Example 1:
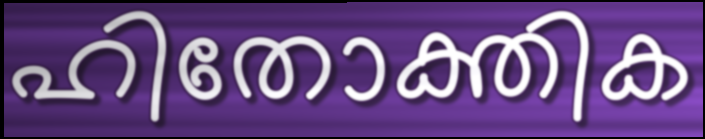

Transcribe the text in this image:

ഹിതോക്തിക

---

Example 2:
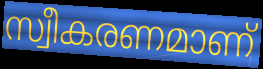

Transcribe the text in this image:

സ്വീകരണമാണ്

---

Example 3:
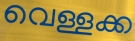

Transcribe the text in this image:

വെള്ളക്ക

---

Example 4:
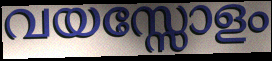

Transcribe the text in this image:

വയസ്സോളം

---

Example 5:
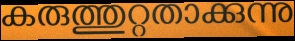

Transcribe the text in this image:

കരുത്തുറ്റതാക്കുന്നു